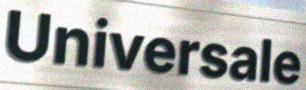
Universale